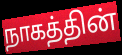
நாகத்தின்